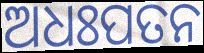
ଅଧଃପତନ